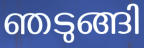
ഞടുങ്ങി